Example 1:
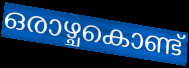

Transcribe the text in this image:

ഒരാഴ്ചകൊണ്ട്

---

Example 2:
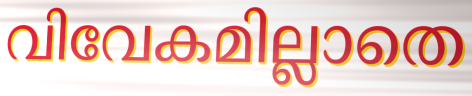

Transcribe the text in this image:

വിവേകമില്ലാതെ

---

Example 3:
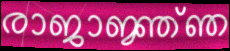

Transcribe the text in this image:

രാജാജ്ഞ്ഞ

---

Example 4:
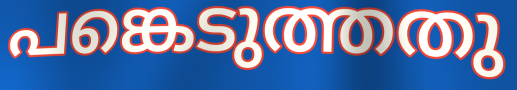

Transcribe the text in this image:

പങ്കെടുത്തതു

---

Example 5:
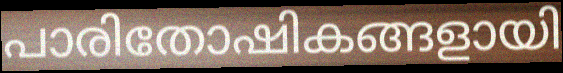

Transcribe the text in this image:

പാരിതോഷികങ്ങളായി